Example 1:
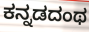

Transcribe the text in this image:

ಕನ್ನಡದಂಥ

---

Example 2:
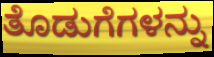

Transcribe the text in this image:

ತೊಡುಗೆಗಳನ್ನು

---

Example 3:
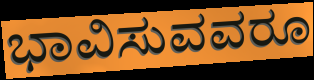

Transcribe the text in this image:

ಭಾವಿಸುವವರೂ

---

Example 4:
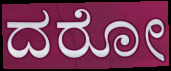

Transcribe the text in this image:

ದರೋ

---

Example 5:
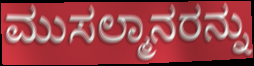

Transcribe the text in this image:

ಮುಸಲ್ಮಾನರನ್ನು